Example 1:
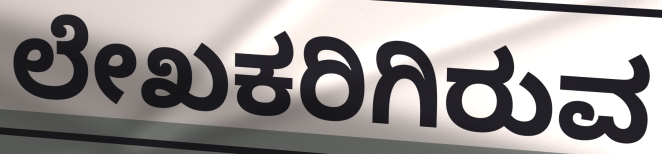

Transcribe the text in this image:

ಲೇಖಕರಿಗಿರುವ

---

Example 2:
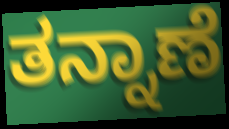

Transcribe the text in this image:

ತನ್ನಾಣೆ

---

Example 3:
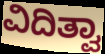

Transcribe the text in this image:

ವಿದಿತ್ವಾ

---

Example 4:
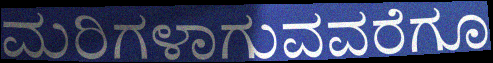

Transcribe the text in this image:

ಮರಿಗಳಾಗುವವರೆಗೂ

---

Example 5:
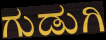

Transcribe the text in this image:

ಗುಡುಗಿ